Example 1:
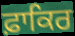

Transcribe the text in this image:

ਫ਼ਾਕਿਰ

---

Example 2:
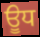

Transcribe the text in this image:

ਊਧ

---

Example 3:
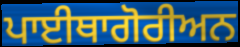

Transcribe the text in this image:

ਪਾਈਥਾਗੋਰੀਅਨ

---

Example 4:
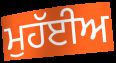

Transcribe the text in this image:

ਮੁਹੱਈਅ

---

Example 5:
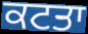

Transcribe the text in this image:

ਕਟਤਾ